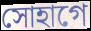
সোহাগে